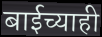
बाईच्याही